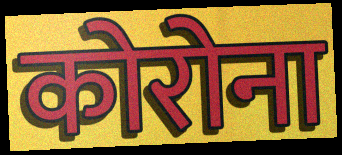
कोरोना